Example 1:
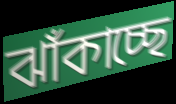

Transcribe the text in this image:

ঝাঁকাচ্ছে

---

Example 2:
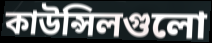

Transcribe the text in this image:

কাউন্সিলগুলো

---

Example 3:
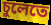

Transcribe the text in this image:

চুলেতে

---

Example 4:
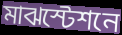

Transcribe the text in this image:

মাঝস্টেশনে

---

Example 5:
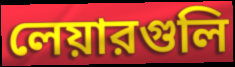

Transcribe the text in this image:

লেয়ারগুলি